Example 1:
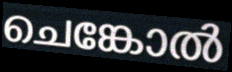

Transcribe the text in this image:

ചെങ്കോൽ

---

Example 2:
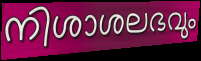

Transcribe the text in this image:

നിശാശലഭവും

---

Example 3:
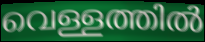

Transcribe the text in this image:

വെള്ളത്തിൽ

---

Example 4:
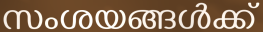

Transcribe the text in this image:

സംശയങ്ങൾക്ക്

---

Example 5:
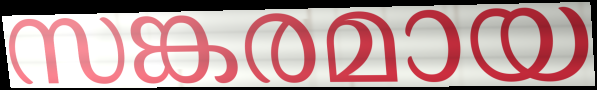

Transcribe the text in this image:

സങ്കരമായ